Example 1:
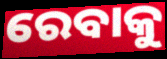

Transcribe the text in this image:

ରେବାକୁ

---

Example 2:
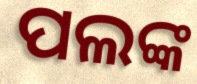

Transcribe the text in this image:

ପଲଙ୍କ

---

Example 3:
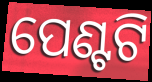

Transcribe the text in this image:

ପେଣ୍ଟଟି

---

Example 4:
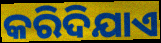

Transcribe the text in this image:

କରିଦିଯାଏ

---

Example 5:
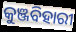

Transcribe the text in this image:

କୁଞ୍ଜବିହାରୀ